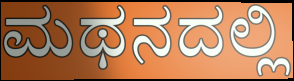
ಮಥನದಲ್ಲಿ